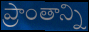
ప్రాంతాన్ని